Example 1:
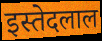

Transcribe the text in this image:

इस्तेदलाल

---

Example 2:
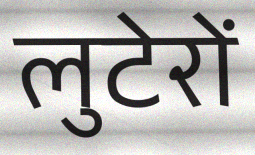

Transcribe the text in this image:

लुटेरों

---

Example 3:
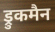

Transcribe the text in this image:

ड्रुकमैन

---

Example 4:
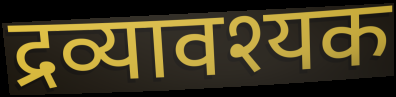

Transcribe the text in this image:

द्रव्यावश्यक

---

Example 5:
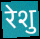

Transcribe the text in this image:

रेशु